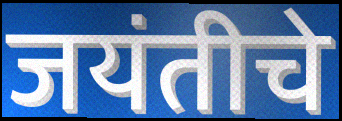
जयंतीचे